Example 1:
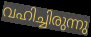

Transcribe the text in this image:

വഹിച്ചിരുന്നു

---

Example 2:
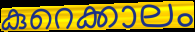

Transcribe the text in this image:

കുറെക്കാലം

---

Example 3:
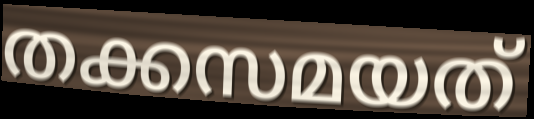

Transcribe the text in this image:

തക്കസമയത്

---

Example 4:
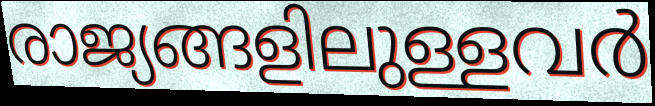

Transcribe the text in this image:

രാജ്യങ്ങളിലുള്ളവർ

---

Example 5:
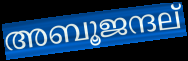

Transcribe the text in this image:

അബൂജന്ദല്